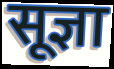
सूज्ञा